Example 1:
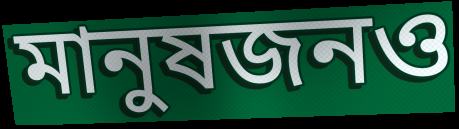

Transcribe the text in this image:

মানুষজনও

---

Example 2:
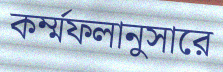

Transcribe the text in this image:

কর্ম্মফলানুসারে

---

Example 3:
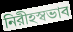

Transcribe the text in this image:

নিরীহস্বভাব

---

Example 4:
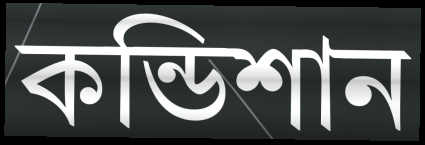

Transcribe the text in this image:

কন্ডিশান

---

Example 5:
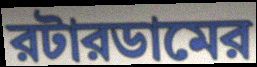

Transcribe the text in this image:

রটারডামের